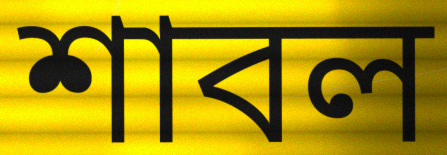
শাবল